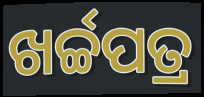
ଖର୍ଚ୍ଚପତ୍ର